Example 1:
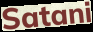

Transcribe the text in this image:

Satani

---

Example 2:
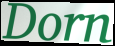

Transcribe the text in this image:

Dorn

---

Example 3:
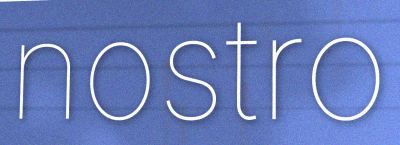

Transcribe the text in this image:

nostro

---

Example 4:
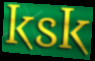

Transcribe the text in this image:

ksk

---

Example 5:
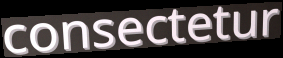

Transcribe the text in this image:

consectetur